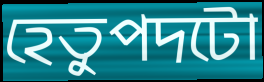
হেতুপদটো